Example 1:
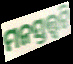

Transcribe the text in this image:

ମନସ୍ତତ୍ତ୍ୱଟି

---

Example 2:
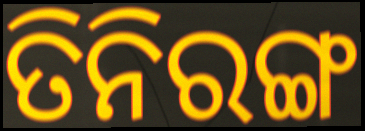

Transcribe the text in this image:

ତିନିରଙ୍ଗ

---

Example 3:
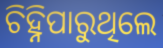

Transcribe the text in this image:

ଚିହ୍ନିପାରୁଥିଲେ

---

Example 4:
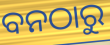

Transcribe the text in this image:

ବନଠାରୁ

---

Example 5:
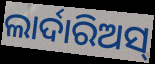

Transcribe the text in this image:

ଲାର୍ଦାରିଅସ୍